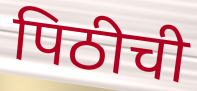
पिठीची